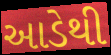
આડેથી